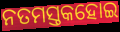
ନତମସ୍ତକହୋଇ